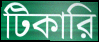
টিকারি